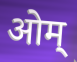
ओम्